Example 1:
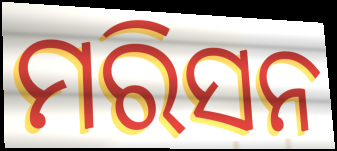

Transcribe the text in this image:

ମରିସନ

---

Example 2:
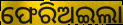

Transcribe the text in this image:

ଫେରିଅଇଲା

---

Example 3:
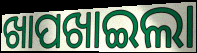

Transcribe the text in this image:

ଖାପଖାଇଲା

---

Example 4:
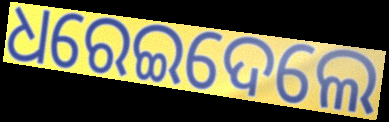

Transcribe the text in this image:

ଧରେଇଦେଲେ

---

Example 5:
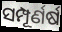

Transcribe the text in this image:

ସମ୍ପୂର୍ଣର୍ଷ